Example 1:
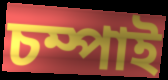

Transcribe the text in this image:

চম্পাই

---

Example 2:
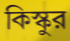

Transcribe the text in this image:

কিস্কুর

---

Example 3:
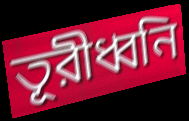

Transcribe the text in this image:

তূরীধ্বনি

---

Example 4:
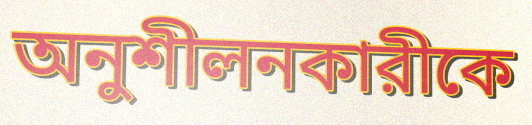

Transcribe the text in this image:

অনুশীলনকারীকে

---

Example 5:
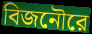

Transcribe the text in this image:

বিজনৌরে